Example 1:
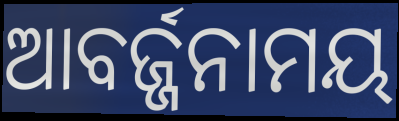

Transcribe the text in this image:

ଆବର୍ଜ୍ଜନାମୟ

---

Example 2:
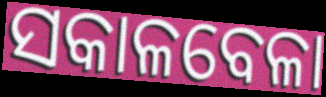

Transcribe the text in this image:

ସକାଳବେଳା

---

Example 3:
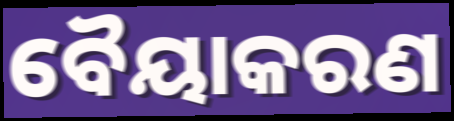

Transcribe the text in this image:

ବୈୟାକରଣ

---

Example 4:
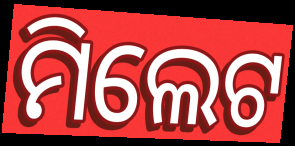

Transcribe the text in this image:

ମିଲେଟ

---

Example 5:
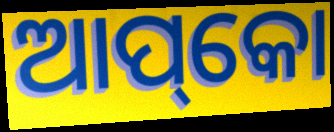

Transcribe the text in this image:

ଆପ୍‌କୋ